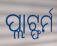
ପ୍ଲାଟ୍ଫର୍ମ